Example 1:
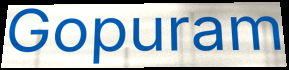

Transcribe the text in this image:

Gopuram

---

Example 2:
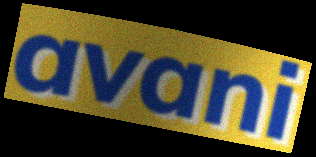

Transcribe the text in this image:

avani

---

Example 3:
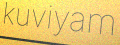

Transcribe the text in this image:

kuviyam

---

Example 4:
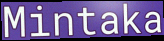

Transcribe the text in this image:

Mintaka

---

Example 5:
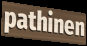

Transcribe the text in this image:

pathinen